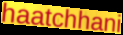
haatchhani